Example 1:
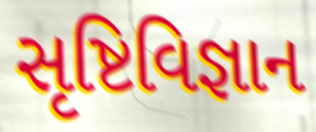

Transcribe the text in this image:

સૃષ્ટિવિજ્ઞાન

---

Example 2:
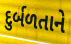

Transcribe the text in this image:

દુર્બળતાને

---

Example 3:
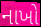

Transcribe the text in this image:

નાખો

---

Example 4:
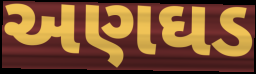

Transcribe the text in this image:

અણઘડ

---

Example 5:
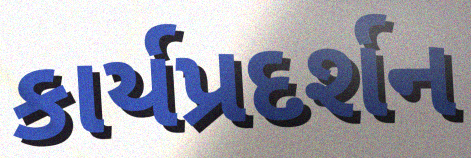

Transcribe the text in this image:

કાર્યપ્રદર્શન